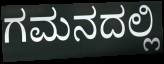
ಗಮನದಲ್ಲಿ